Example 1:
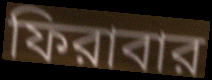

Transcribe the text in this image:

ফিরাবার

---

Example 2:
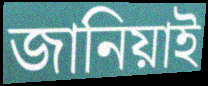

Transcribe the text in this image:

জানিয়াই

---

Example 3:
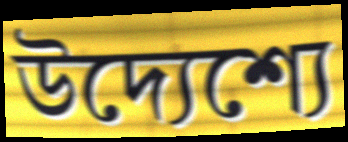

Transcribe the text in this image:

উদ্যেশ্যে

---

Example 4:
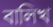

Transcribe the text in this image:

বালিখ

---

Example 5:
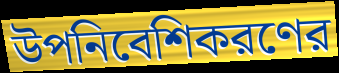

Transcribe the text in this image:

উপনিবেশিকরণের